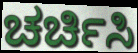
ಚರ್ಚಿಸಿ